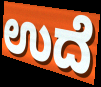
ಉದೆ